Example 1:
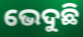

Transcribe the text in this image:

ଭେଦୁଛି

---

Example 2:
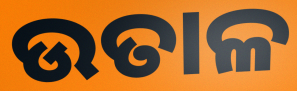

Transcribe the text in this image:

ଉତାଳ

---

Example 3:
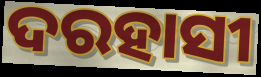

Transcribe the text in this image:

ଦରହାସୀ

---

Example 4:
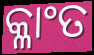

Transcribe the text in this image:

କ୍ଳାଂତ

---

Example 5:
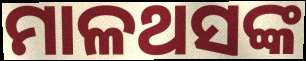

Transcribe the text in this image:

ମାଳଥସଙ୍କ